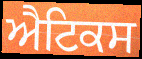
ਐਟਿਕਸ